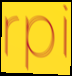
rpi